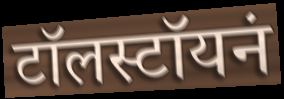
टॉलस्टॉयनं